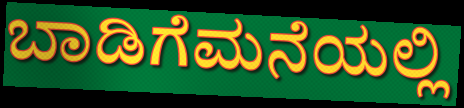
ಬಾಡಿಗೆಮನೆಯಲ್ಲಿ